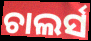
ଚାଲର୍ସ